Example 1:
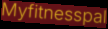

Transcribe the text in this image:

Myfitnesspal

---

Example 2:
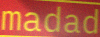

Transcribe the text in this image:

madad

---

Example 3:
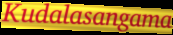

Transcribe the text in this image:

Kudalasangama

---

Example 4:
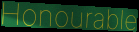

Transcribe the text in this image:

Honourable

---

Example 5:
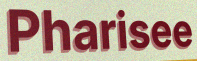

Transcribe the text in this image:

Pharisee